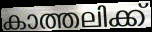
കാത്തലിക്ക്